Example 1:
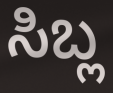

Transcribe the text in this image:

ಸಿಬ್ಲ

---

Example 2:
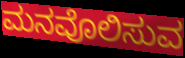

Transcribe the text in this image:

ಮನವೊಲಿಸುವ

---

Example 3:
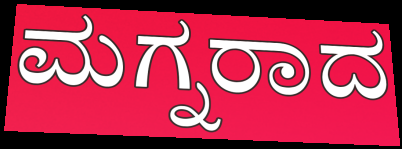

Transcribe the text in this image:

ಮಗ್ನರಾದ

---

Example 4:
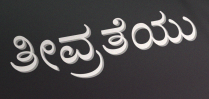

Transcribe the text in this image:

ತೀವ್ರತೆಯು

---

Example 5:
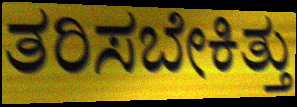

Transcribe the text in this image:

ತರಿಸಬೇಕಿತ್ತು